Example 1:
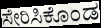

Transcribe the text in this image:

ಸೇರಿಸಿಕೊಂಡ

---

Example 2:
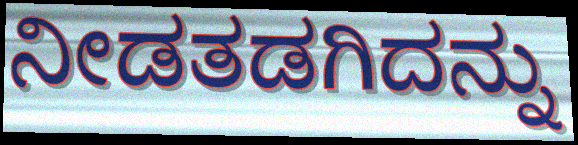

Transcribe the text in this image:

ನೀಡತಡಗಿದನ್ನು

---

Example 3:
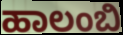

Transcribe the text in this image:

ಹಾಲಂಬಿ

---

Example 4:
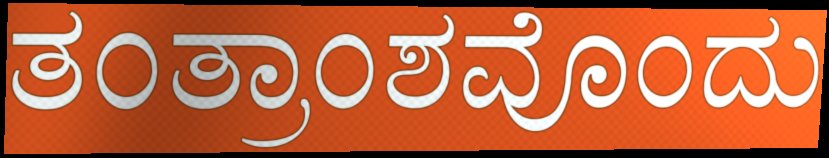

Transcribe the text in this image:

ತಂತ್ರಾಂಶವೊಂದು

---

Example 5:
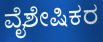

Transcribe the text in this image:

ವೈಶೇಷಿಕರ